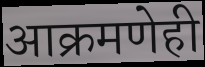
आक्रमणेही